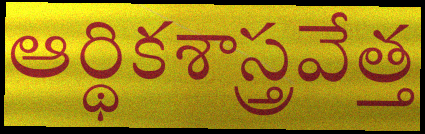
ఆర్థికశాస్త్రవేత్త